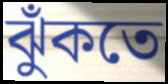
ঝুঁকতে